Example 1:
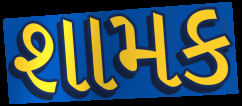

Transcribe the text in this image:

શામક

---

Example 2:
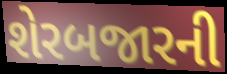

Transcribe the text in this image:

શેરબજારની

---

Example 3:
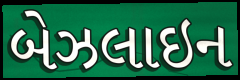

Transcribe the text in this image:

બેઝલાઇન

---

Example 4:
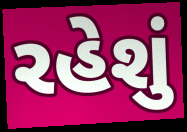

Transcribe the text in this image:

રહેશું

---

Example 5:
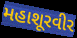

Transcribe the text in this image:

મહાશૂરવીર